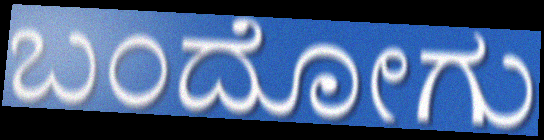
ಬಂದೋಗು